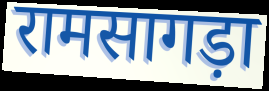
रामसागड़ा